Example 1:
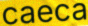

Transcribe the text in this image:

caeca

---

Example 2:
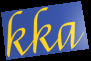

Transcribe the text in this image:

kka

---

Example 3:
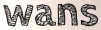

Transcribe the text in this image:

wans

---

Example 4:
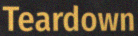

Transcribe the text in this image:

Teardown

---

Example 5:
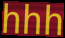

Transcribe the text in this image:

hhh